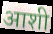
आशी